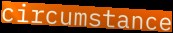
circumstance